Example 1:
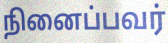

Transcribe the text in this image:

நினைப்பவர்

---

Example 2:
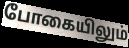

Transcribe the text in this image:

போகையிலும்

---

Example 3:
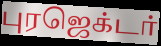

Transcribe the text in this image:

புரஜெக்டர்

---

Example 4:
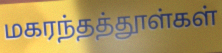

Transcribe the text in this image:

மகரந்தத்தூள்கள்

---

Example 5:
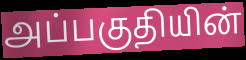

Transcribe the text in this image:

அப்பகுதியின்